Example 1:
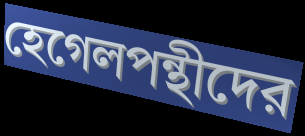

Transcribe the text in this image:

হেগেলপন্থীদের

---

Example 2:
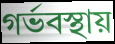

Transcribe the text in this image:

গর্ভবস্থায়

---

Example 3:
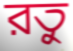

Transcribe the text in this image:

রতু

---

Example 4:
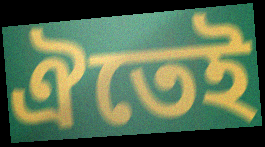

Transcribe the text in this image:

ঐতেই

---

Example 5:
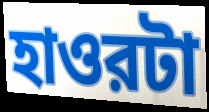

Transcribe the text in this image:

হাওরটা